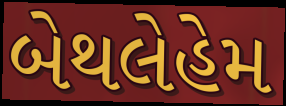
બેથલેહેમ